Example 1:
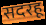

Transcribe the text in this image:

सदरहू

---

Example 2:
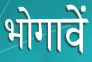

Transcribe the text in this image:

भोगावें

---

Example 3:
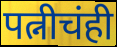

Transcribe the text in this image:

पत्नीचंही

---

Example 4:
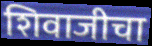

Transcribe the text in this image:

शिवाजीचा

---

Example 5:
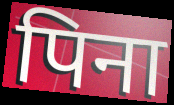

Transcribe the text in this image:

पिना